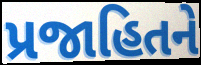
પ્રજાહિતને